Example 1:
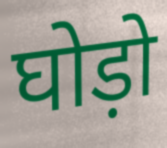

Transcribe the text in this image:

घोड़ो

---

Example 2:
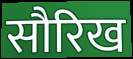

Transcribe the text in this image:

सौरिख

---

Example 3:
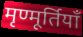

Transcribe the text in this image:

मृण्मूर्तियाँ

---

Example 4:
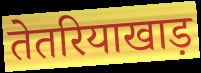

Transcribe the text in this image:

तेतरियाखाड़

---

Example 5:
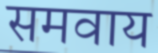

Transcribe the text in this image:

समवाय